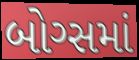
બોગ્સમાં